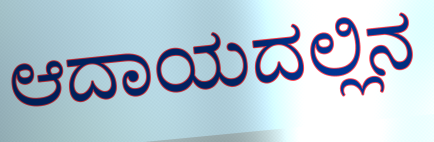
ಆದಾಯದಲ್ಲಿನ